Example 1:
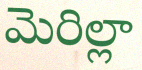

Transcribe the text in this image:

మెరిల్లా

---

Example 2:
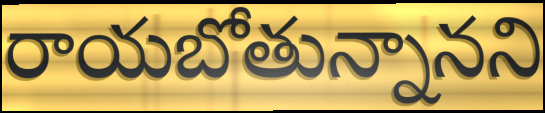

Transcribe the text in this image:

రాయబోతున్నానని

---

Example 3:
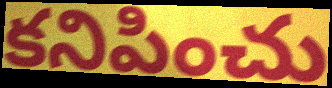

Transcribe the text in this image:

కనిపించు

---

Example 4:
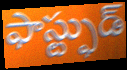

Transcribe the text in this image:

ఫాస్ట్ఫుడ్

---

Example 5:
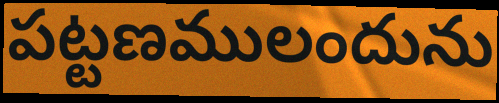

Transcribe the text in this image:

పట్టణములందును